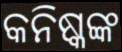
କନିଷ୍କଙ୍କ